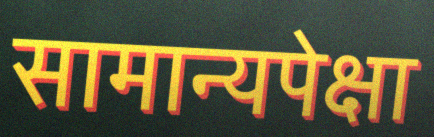
सामान्यपेक्षा